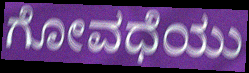
ಗೋವಧೆಯು